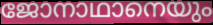
ജോനാഥാനെയും